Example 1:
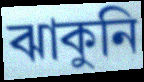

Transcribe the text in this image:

ঝাকুনি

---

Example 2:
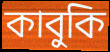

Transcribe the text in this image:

কাবুকি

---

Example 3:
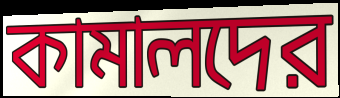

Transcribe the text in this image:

কামালদের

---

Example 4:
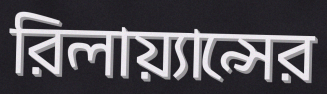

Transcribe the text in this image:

রিলায়্যান্সের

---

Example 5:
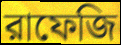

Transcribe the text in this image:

রাফেজি